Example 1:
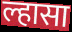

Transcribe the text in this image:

ल्हासा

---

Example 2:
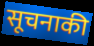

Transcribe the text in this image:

सूचनाकी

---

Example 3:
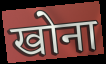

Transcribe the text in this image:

खोना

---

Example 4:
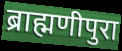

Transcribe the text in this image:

ब्राह्मणीपुरा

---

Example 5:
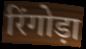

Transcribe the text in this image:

रिंगोड़ा